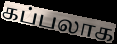
கப்பலாக